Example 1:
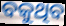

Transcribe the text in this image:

ବକୁଥିବ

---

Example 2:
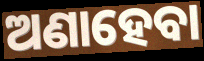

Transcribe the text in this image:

ଅଣାହେବା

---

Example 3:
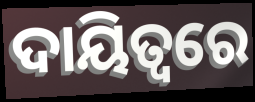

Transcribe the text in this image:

ଦାୟିତ୍ବରେ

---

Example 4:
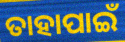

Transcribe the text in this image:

ତାହାପାଇଁ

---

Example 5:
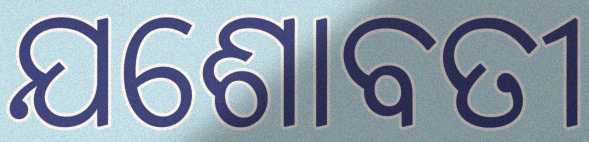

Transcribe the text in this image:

ଯଶୋବତୀ